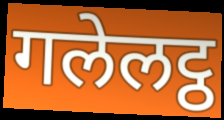
गलेलट्ठ